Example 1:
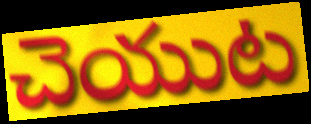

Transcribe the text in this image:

చెయుట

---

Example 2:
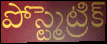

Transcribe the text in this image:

పోస్ట్మెట్రిక్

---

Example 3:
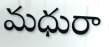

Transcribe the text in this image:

మధురా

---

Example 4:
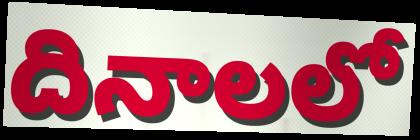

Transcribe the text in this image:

దినాలలో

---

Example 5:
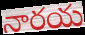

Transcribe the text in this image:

నారయ